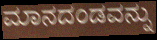
ಮಾನದಂಡವನ್ನು